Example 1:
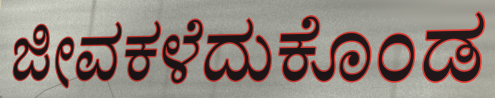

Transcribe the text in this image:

ಜೀವಕಳೆದುಕೊಂಡ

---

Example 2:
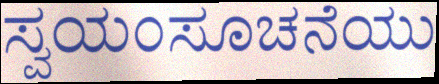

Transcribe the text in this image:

ಸ್ವಯಂಸೂಚನೆಯು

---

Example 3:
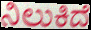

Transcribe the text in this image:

ನಿಲುಕಿದೆ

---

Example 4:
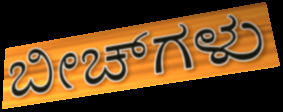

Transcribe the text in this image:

ಬೀಚ್‌ಗಳು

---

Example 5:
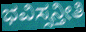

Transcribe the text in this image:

ಭವಿಸ್ಸನ್ತೀತಿ